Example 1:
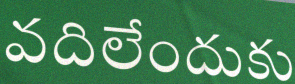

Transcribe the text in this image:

వదిలేందుకు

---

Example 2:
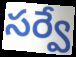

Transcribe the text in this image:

సర్వే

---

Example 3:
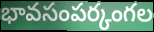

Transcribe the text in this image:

భావసంపర్కంగల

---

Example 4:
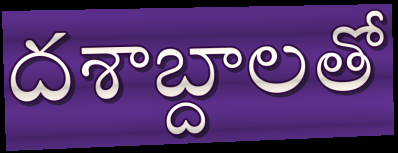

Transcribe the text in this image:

దశాబ్దాలతో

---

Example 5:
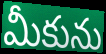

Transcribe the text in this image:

మీకును